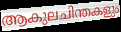
ആകുലചിന്തകളും